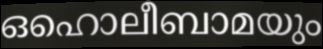
ഒഹൊലീബാമയും